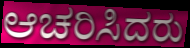
ಆಚರಿಸಿದರು